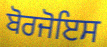
ਬੋਰਜੋਇਸ